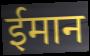
ईमान